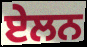
ਏਲਨ